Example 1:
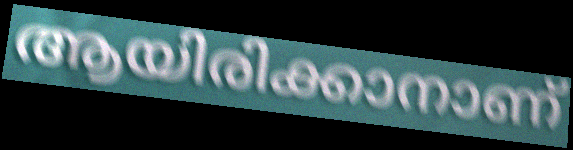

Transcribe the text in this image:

ആയിരിക്കാനാണ്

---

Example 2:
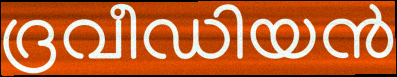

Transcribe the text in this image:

ദ്രവീഡിയൻ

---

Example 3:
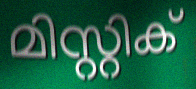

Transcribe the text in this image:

മിസ്റ്റിക്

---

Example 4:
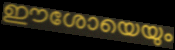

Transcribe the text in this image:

ഈശോയെയും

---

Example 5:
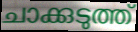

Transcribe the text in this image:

ചാക്കുടുത്ത്